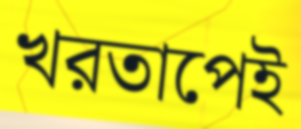
খরতাপেই